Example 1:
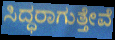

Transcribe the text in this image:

ಸಿದ್ಧರಾಗುತ್ತೇವೆ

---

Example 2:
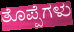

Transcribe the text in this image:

ತೊಪ್ಪೆಗಳು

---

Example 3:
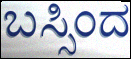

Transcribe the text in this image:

ಬಸ್ಸಿಂದ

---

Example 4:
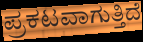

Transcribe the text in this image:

ಪ್ರಕಟವಾಗುತ್ತಿದೆ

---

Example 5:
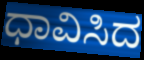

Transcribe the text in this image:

ಧಾವಿಸಿದ